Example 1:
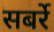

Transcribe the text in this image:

सबर्रे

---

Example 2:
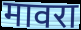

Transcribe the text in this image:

मावरा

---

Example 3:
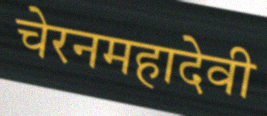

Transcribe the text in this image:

चेरनमहादेवी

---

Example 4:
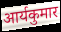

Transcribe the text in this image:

आर्यकुमार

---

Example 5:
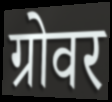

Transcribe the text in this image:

ग्रोवर